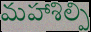
మహాశిల్పి